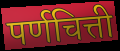
पर्णचित्ती